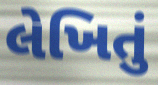
લેખિતું